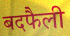
बदफैली